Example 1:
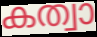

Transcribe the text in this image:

കത്വാ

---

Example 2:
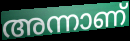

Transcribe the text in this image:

അന്നാണ്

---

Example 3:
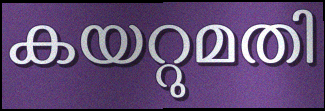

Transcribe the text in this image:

കയറ്റുമതി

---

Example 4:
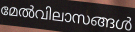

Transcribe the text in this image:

മേൽവിലാസങ്ങൾ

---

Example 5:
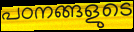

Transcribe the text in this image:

പഠനങ്ങളുടെ